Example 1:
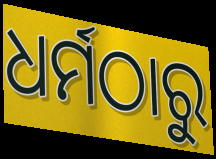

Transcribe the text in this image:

ଧର୍ମଠାରୁ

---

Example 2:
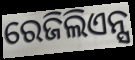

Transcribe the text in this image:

ରେଜିଲିଏନ୍ସ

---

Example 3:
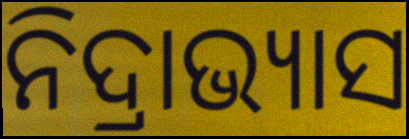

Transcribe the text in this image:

ନିଦ୍ରାଭ୍ୟାସ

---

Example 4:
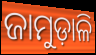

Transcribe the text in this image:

ଜାମୁଡ଼ାଳି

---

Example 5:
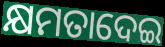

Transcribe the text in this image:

କ୍ଷମତାଦେଇ